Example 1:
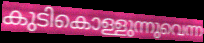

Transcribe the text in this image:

കുടികൊള്ളുന്നുവെന്ന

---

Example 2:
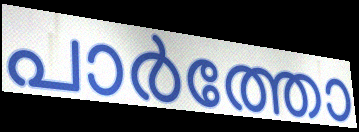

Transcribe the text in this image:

പാർത്തോ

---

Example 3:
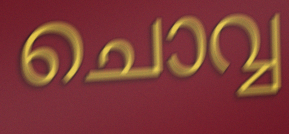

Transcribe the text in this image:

ചൊവ്വ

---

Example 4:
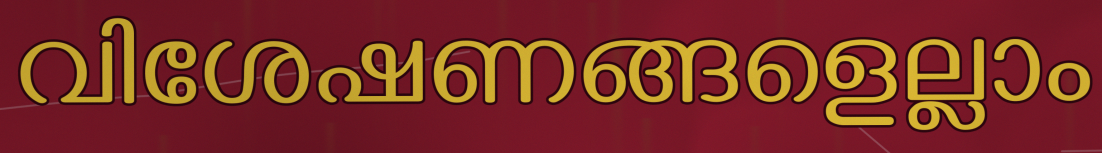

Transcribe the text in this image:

വിശേഷണങ്ങളെല്ലാം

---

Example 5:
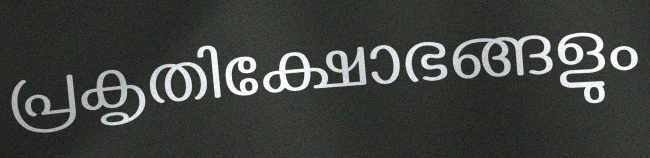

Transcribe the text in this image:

പ്രകൃതിക്ഷോഭങ്ങളും